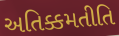
અતિક્કમતીતિ